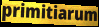
primitiarum